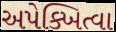
અપેક્ખિત્વા